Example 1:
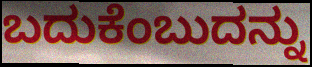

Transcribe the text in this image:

ಬದುಕೆಂಬುದನ್ನು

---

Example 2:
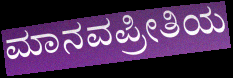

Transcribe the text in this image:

ಮಾನವಪ್ರೀತಿಯ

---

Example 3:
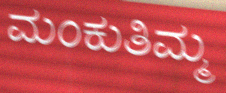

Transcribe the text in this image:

ಮಂಕುತಿಮ್ಮ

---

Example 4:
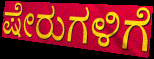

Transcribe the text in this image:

ಷೇರುಗಳಿಗೆ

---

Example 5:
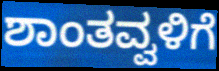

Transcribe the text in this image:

ಶಾಂತವ್ವಳಿಗೆ